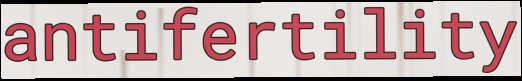
antifertility